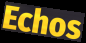
Echos